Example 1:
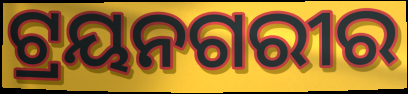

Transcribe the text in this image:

ଟ୍ରୟନଗରୀର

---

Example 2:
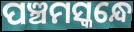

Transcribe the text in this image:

ପଞ୍ଚମସ୍କନ୍ଧେ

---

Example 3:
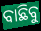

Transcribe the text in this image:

ବାଛିବୁ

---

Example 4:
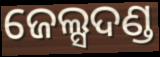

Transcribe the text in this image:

ଜେଲ୍ସଦଣ୍ଡ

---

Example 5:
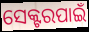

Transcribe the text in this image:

ସେକ୍ଟରପାଇଁ